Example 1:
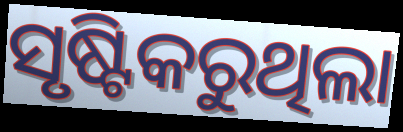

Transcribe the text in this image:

ସୃଷ୍ଟିକରୁଥିଲା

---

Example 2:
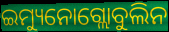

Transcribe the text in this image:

ଇମ୍ୟୁନୋଗ୍ଲୋବୁଲିନ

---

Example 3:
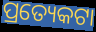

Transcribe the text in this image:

ପ୍ରତ୍ୟେକଟା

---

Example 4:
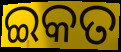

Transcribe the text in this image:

ଇକତ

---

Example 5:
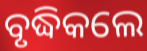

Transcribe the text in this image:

ବୃଦ୍ଧିକଲେ